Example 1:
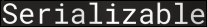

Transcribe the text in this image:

Serializable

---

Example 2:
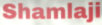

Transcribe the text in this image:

Shamlaji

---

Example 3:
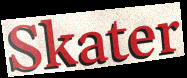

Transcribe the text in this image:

Skater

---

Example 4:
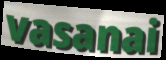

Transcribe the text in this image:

vasanai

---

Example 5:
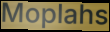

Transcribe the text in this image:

Moplahs